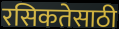
रसिकतेसाठी